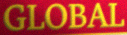
GLOBAL